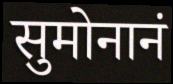
सुमोनानं